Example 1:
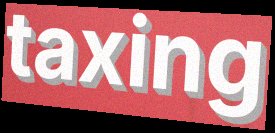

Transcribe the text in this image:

taxing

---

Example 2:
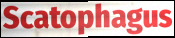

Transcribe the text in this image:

Scatophagus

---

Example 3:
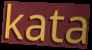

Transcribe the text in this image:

kata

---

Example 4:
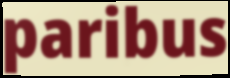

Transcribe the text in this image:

paribus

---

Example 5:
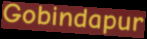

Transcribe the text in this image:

Gobindapur